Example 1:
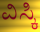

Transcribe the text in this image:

ವಿಸ್ಕಿ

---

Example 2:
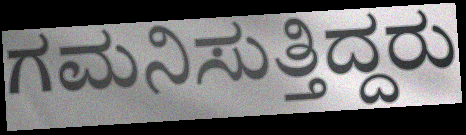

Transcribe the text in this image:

ಗಮನಿಸುತ್ತಿದ್ದರು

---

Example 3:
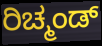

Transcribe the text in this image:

ರಿಚ್ಮಂಡ್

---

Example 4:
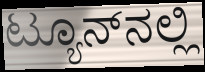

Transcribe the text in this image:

ಟ್ಯೂನ್‌ನಲ್ಲಿ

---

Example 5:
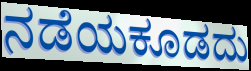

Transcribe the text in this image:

ನಡೆಯಕೂಡದು